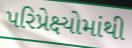
પરિપ્રેક્ષ્યોમાંથી